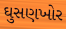
ઘુસણખોર